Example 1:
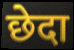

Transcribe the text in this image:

छेदा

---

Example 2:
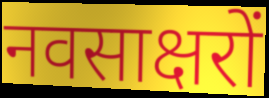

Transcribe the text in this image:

नवसाक्षरों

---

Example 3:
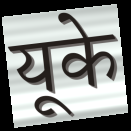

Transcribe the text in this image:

यूके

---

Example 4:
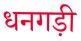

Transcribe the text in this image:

धनगड़ी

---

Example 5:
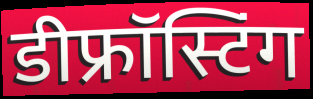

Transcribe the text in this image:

डीफ्रॉस्टिंग